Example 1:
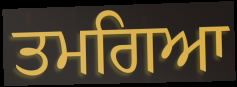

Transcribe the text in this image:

ਤਮਗਿਆ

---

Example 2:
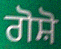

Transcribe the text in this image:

ਗੋਸ਼ੋ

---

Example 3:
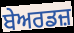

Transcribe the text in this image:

ਬੇਅਰਡਜ਼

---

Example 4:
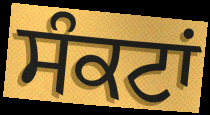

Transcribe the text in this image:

ਸੰਕਟਾਂ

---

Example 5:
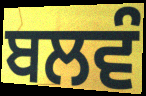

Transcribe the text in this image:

ਬਲਵੰ